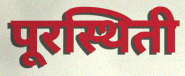
पूरस्थिती